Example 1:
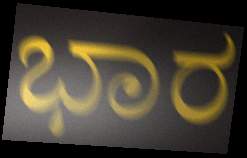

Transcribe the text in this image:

ಭಾರ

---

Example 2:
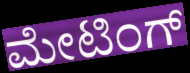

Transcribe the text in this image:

ಮೇಟಿಂಗ್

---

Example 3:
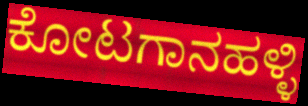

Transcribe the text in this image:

ಕೋಟಗಾನಹಳ್ಳಿ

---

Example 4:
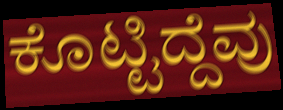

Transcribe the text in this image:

ಕೊಟ್ಟಿದ್ದೆವು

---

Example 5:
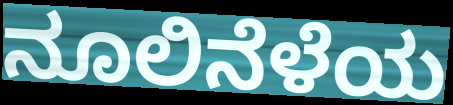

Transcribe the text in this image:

ನೂಲಿನೆಳೆಯ